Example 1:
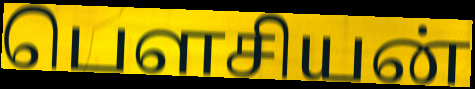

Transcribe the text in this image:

பௌசியன்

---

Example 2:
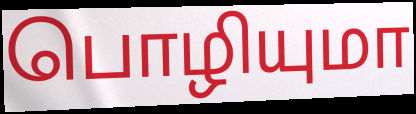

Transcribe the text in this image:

பொழியுமா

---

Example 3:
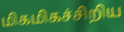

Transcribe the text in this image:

மிகமிகச்சிறிய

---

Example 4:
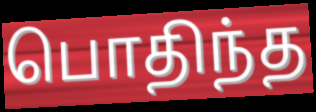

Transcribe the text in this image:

பொதிந்த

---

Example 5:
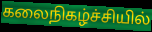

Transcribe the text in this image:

கலைநிகழ்ச்சியில்